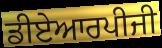
ਡੀਏਆਰਪੀਜੀ